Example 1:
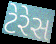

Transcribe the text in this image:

ટેરેસ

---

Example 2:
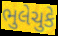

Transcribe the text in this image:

ભુલેચુકે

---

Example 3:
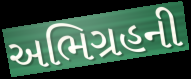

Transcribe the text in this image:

અભિગ્રહની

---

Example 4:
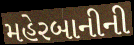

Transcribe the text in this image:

મહેરબાનીની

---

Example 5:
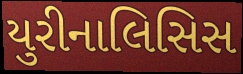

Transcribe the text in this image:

યુરીનાલિસિસ